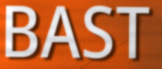
BAST